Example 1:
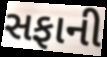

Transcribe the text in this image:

સફાની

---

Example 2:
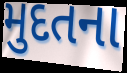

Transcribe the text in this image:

મુદતના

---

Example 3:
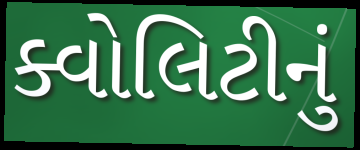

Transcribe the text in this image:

ક્વોલિટીનું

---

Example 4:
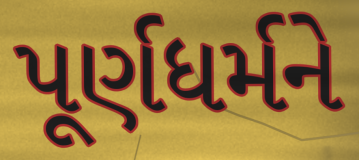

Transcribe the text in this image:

પૂર્ણધર્મને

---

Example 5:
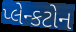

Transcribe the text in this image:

પ્લેન્કટોન